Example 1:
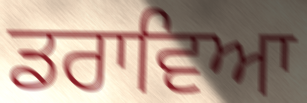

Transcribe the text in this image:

ਡਰਾਵਿਆ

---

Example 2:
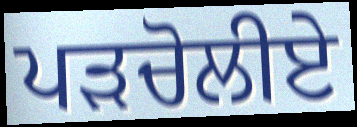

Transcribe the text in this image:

ਪੜਚੋਲੀਏ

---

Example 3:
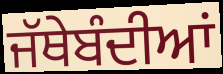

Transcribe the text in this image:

ਜੱਥੇਬੰਦੀਆਂ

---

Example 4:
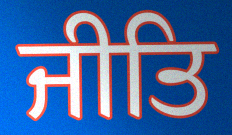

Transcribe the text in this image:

ਜੀਤਿ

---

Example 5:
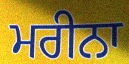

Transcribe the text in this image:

ਮਰੀਨਾ